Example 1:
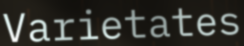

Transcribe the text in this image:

Varietates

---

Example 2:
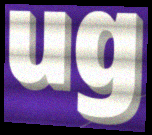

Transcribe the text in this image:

ug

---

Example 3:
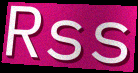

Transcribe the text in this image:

Rss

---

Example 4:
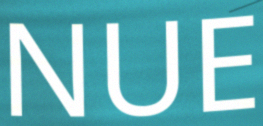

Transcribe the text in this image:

NUE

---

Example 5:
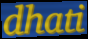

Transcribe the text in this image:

dhati